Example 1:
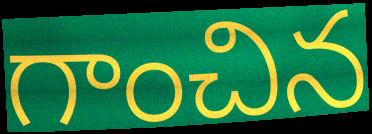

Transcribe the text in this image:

గాంచిన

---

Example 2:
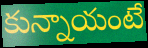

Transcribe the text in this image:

కున్నాయంటే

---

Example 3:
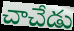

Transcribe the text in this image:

చాచేడు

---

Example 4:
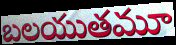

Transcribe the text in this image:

బలయుతమూ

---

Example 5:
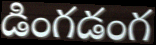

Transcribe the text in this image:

డింగడంగ